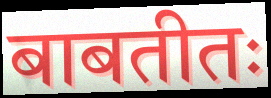
बाबतीतः